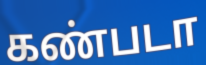
கண்படா